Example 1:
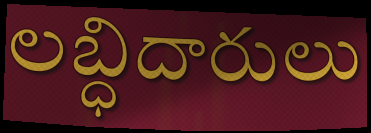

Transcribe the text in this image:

లబ్ధిదారులు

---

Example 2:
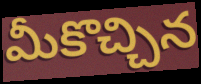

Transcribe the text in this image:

మీకొచ్చిన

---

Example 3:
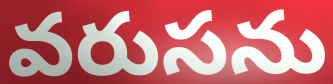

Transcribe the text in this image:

వరుసను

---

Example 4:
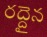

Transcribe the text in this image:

రద్దైన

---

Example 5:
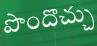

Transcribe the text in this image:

పొందొచ్చు